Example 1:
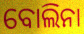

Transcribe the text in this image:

ବୋଲିନା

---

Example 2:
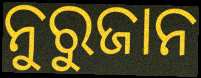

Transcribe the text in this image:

ନୁରୁଜାନ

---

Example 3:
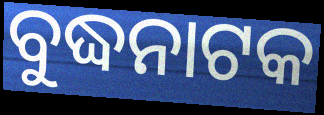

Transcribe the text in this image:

ବୁଦ୍ଧନାଟକ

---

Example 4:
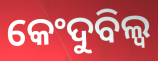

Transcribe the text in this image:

କେଂଦୁବିଲ୍ୱ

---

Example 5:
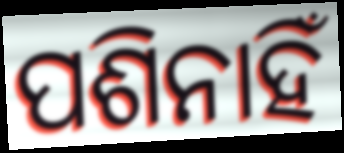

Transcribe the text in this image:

ପଶିନାହିଁ